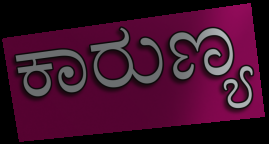
ಕಾರುಣ್ಯ